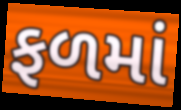
ફળમાં